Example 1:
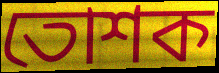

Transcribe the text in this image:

তোশক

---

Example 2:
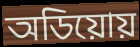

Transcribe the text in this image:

অডিয়োয়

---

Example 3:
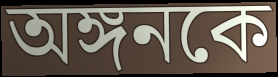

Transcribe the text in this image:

অঙ্গনকে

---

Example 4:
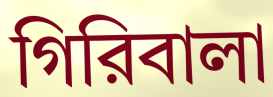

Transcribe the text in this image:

গিরিবালা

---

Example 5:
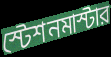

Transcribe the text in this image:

স্টেশনমাস্টার